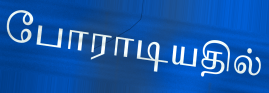
போராடியதில்